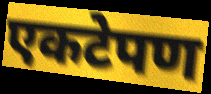
एकटेपण